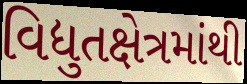
વિદ્યુતક્ષેત્રમાંથી